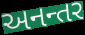
અનન્તર